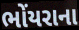
ભોંયરાના